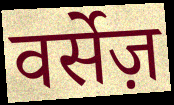
वर्सेज़